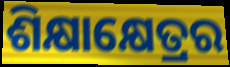
ଶିକ୍ଷାକ୍ଷେତ୍ରର